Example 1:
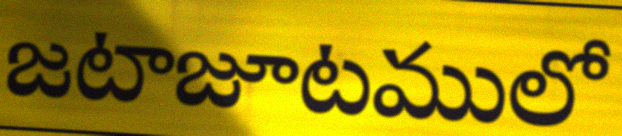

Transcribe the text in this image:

జటాజూటములో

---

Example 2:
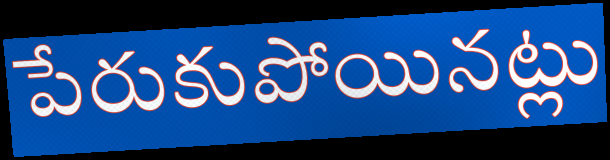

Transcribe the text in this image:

పేరుకుపోయినట్లు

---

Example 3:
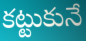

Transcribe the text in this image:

కట్టుకునే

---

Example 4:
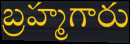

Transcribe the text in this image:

బ్రహ్మగారు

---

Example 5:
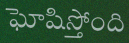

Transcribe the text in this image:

ఘోషిస్తోంది